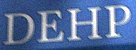
DEHP